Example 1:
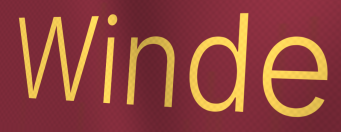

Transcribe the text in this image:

Winde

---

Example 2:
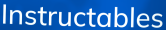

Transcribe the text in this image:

Instructables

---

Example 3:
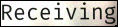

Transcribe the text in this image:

Receiving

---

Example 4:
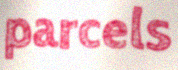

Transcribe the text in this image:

parcels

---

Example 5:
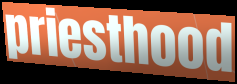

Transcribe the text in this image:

priesthood